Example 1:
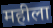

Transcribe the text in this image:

महीला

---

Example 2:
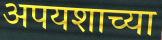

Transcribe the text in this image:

अपयशाच्या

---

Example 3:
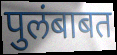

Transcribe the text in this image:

पुलंबाबत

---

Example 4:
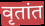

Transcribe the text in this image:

वृतांत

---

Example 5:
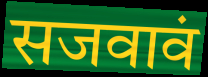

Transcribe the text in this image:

सजवावं